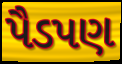
પૈડપણ